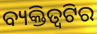
ବ୍ୟକ୍ତିତ୍ୱଟିର